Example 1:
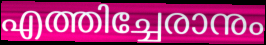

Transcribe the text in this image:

എത്തിച്ചേരാനും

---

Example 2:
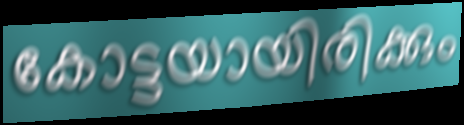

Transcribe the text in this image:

കോട്ടയായിരിക്കും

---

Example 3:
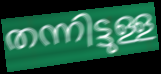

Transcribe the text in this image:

തന്നിട്ടുള്ള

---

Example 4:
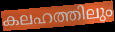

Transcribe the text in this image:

കലഹത്തിലും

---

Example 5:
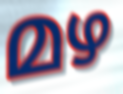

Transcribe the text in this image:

മഴ